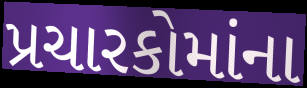
પ્રચારકોમાંના